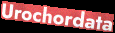
Urochordata